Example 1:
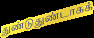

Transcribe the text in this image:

துண்டுதுண்டாகக்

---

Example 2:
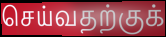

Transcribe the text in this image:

செய்வதற்குக்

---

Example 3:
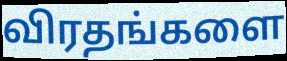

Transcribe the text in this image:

விரதங்களை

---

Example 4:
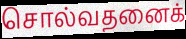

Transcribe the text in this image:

சொல்வதனைக்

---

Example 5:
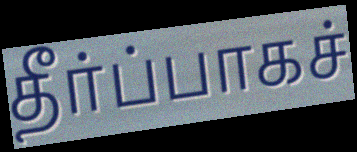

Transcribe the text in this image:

தீர்ப்பாகச்